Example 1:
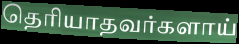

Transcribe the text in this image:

தெரியாதவர்களாய்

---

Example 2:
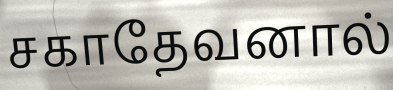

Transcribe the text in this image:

சகாதேவனால்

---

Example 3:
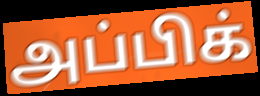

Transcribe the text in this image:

அப்பிக்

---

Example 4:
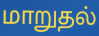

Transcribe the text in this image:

மாறுதல்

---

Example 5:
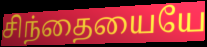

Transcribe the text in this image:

சிந்தையையே